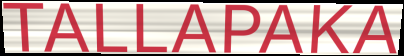
TALLAPAKA